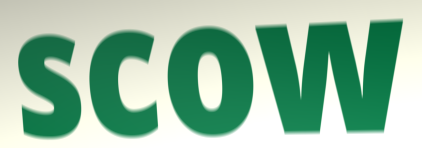
scow